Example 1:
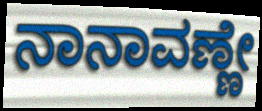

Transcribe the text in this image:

ನಾನಾವಣ್ಣೇ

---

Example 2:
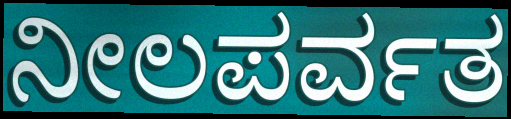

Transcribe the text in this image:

ನೀಲಪರ್ವತ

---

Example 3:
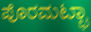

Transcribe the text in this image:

ಪೊರಮಟ್ಟಾ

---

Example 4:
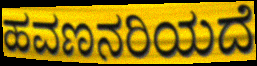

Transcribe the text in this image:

ಹವಣನರಿಯದೆ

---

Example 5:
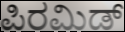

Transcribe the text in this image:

ಪಿರಮಿಡ್